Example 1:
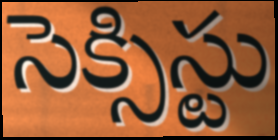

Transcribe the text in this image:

సెక్సిస్టు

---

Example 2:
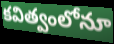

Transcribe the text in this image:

కవిత్వంలోనూ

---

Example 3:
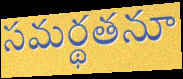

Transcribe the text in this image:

సమర్థతనూ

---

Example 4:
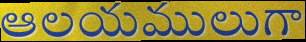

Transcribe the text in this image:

ఆలయములుగా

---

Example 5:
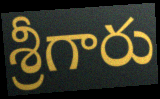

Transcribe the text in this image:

శ్రీగారు